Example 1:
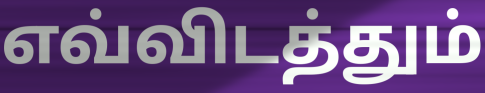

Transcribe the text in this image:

எவ்விடத்தும்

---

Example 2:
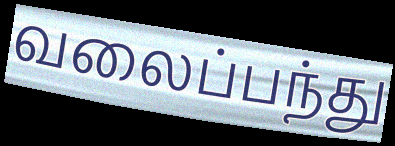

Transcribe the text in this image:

வலைப்பந்து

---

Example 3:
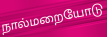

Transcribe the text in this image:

நால்மறையோடு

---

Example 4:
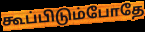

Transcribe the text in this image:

கூப்பிடும்போதே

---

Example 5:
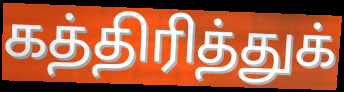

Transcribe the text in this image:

கத்திரித்துக்